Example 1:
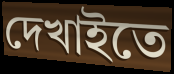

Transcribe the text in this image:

দেখাইতে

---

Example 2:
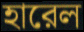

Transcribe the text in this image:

হারেল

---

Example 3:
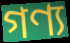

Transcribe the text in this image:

গণ্য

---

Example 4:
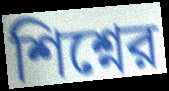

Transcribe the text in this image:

শিশ্নের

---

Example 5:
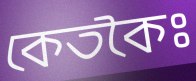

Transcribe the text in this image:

কেতকৈঃ